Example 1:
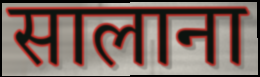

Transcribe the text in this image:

सालाना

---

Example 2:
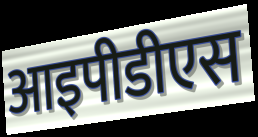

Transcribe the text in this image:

आइपीडीएस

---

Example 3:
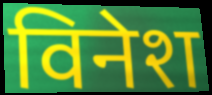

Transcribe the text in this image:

विनेश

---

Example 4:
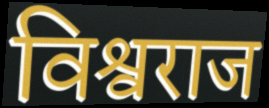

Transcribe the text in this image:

विश्वराज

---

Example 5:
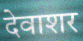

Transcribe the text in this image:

देवाशर